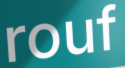
rouf